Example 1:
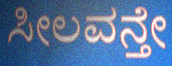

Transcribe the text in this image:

ಸೀಲವನ್ತೇ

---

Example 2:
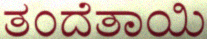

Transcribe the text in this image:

ತಂದೆತಾಯಿ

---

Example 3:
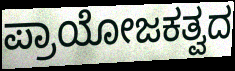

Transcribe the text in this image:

ಪ್ರಾಯೋಜಕತ್ವದ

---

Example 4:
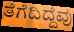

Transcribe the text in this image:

ತೆಗೆದಿದ್ದೆವು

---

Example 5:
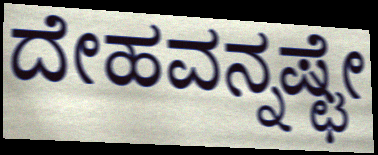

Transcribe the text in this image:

ದೇಹವನ್ನಷ್ಟೇ